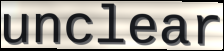
unclear